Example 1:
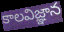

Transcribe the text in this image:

కాలవిజ్ఞాన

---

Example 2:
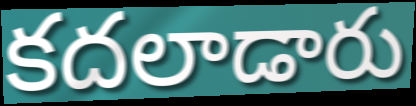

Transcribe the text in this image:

కదలాడారు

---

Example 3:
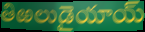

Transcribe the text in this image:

తిఱలుడైయాయ్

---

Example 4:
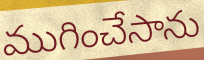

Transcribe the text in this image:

ముగించేసాను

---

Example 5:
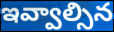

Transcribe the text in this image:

ఇవ్వాల్సిన